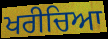
ਖਰੀਚਿਆ